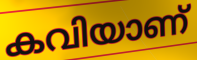
കവിയാണ്